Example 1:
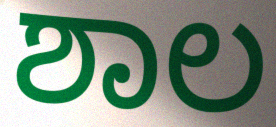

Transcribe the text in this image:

ಶಾಲ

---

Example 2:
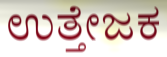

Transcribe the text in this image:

ಉತ್ತೇಜಕ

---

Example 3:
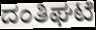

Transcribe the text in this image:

ದಂತಿಘಟೆ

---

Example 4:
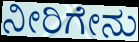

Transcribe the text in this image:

ನೀರಿಗೇನು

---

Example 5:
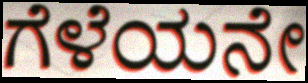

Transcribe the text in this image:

ಗೆಳೆಯನೇ